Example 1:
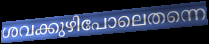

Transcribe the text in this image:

ശവക്കുഴിപോലെതന്നെ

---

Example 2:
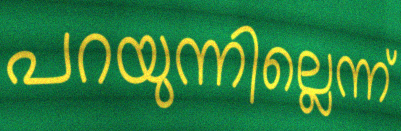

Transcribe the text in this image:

പറയുന്നില്ലെന്ന്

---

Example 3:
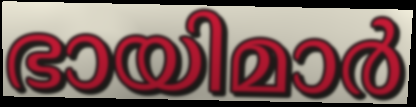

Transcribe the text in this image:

ഭായിമാർ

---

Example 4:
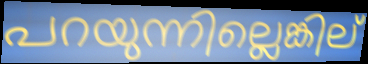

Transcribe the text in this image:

പറയുന്നില്ലെങ്കില്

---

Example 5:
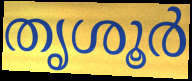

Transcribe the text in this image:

തൃശൂർ